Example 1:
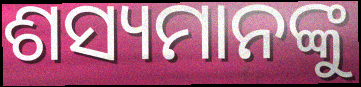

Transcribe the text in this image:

ଶସ୍ୟମାନଙ୍କୁ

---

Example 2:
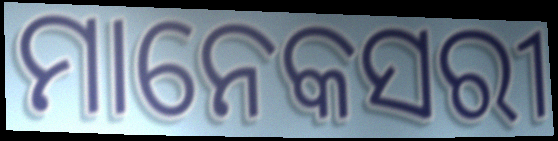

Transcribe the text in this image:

ମାନେକସରୀ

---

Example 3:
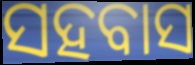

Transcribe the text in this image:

ସହବାସ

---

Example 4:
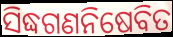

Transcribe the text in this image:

ସିଦ୍ଧଗଣନିଷେବିତ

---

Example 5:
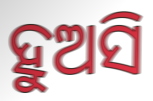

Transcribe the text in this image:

ହୁଅସି